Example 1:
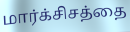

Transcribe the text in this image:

மார்க்சிசத்தை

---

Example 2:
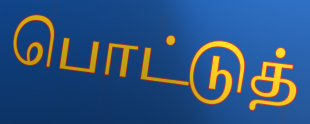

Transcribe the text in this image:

பொட்டுத்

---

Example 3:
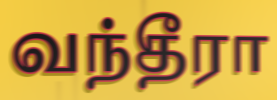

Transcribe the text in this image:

வந்தீரா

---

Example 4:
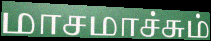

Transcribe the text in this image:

மாசமாச்சும்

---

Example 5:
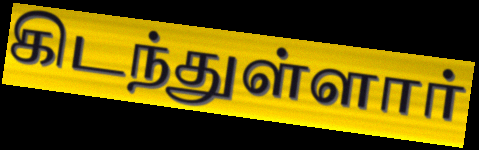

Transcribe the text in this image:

கிடந்துள்ளார்